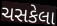
ચસકેલા